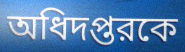
অধিদপ্তরকে